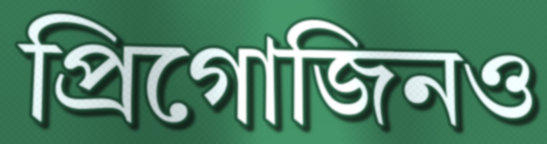
প্রিগোজিনও